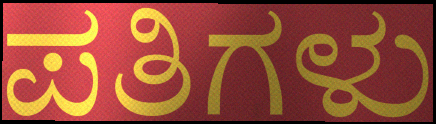
ಪತಿಗಳು